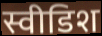
स्वीडिश